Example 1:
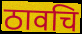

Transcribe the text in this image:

ठावचि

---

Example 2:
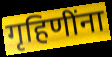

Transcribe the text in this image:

गृहिणींना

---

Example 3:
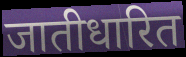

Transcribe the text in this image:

जातीधारित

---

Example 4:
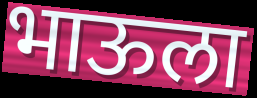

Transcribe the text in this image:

भाऊला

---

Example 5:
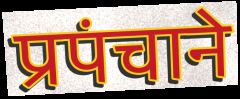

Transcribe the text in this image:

प्रपंचाने